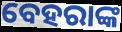
ବେହରାଙ୍କ